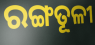
ରଙ୍ଗତୂଳୀ